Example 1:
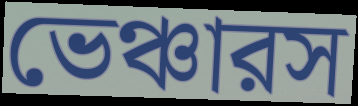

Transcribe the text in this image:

ভেঞ্চারস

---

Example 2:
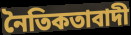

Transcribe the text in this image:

নৈতিকতাবাদী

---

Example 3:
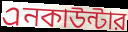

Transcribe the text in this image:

এনকাউন্টার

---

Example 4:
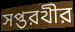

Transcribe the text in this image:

সপ্তরথীর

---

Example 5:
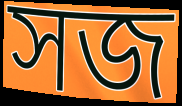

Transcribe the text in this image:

সজ